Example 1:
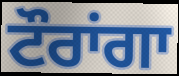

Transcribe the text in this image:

ਟੌਰਾਂਗਾ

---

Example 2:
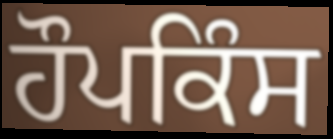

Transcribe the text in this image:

ਹੌਪਕਿੰਸ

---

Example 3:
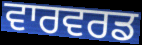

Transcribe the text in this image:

ਵਾਰਵਰਡ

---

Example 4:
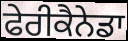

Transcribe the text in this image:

ਫੇਰੀਕੈਨੇਡਾ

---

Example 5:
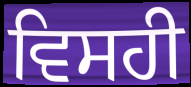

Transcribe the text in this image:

ਵਿਸਹੀ